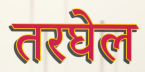
तरघेल